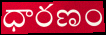
ధారణం